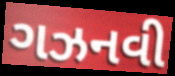
ગઝનવી